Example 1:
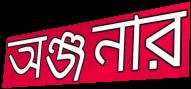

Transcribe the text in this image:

অঞ্জনার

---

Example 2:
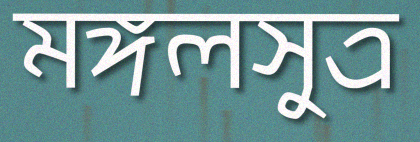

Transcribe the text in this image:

মঙ্গলসুত্র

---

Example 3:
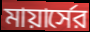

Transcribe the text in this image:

মায়ার্সের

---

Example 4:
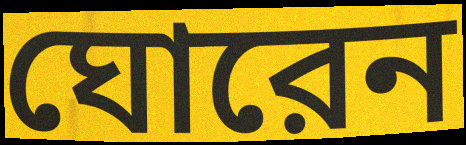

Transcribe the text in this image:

ঘোরেন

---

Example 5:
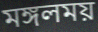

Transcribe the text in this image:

মঙ্গলময়